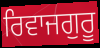
ਰਿਵਾਜਗੁਰੂ